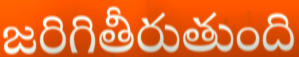
జరిగితీరుతుంది